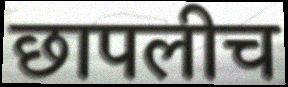
छापलीच